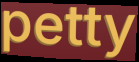
petty